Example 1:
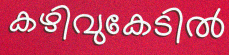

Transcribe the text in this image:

കഴിവുകേടിൽ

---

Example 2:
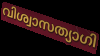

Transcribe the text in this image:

വിശ്വാസത്യാഗി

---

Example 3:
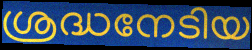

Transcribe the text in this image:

ശ്രദ്ധനേടിയ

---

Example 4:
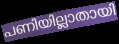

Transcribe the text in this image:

പണിയില്ലാതായി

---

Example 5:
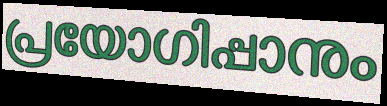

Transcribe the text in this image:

പ്രയോഗിപ്പാനും